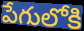
పేగులోకి